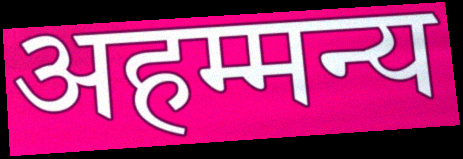
अहम्मन्य